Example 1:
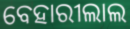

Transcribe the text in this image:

ବେହାରୀଲାଲ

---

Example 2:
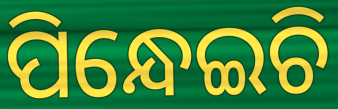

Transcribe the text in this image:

ପିନ୍ଧେଇଚି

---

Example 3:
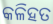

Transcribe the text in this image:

କଳିହତ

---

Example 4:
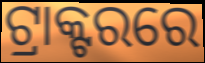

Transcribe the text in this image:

ଟ୍ରାକ୍ଟରରେ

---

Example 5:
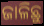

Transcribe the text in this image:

ଜାଳିଛୁ